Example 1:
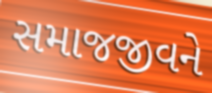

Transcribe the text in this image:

સમાજજીવને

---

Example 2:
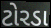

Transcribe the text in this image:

ટોરડા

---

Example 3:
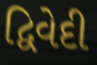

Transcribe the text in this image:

દ્વિવેદી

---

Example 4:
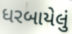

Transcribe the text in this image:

ધરબાયેલું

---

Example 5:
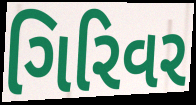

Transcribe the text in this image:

ગિરિવર